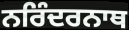
ਨਰਿੰਦਰਨਾਥ